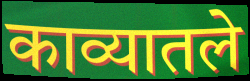
काव्यातले